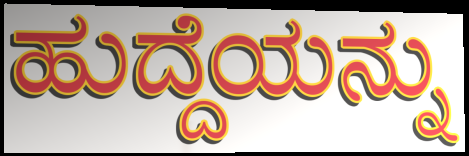
ಹುದ್ದೆಯನ್ನು